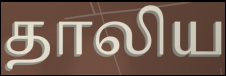
தாலிய